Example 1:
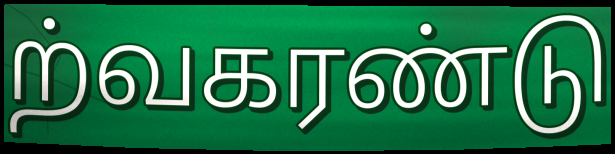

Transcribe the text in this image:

ற்வகரண்டு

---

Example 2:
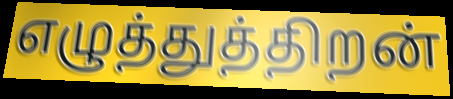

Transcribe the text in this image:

எழுத்துத்திறன்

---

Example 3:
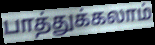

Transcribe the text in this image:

பாத்துக்கலாம்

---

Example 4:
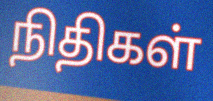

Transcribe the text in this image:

நிதிகள்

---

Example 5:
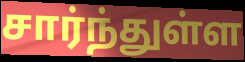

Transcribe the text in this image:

சார்ந்துள்ள